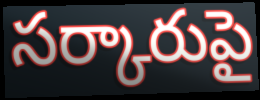
సర్కారుపై